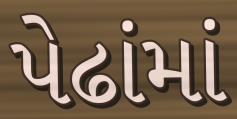
પેઢાંમાં